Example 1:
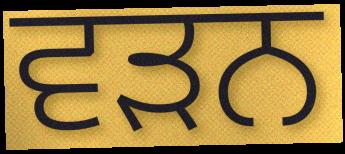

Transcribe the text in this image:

ਵੜਨ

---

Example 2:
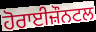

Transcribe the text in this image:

ਹੋਰਾਈਜ਼ੌਨਟਲ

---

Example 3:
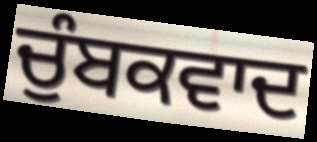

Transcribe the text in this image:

ਚੁੰਬਕਵਾਦ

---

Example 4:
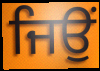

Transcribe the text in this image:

ਜਿਉਂ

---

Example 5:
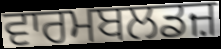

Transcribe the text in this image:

ਵਾਰਮਬਲਡਜ਼